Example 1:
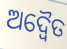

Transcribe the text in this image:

ଅଦ୍ୱୈତ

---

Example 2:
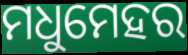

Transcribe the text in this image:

ମଧୁମେହର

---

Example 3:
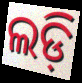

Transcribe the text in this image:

ଲଡ଼ି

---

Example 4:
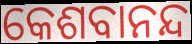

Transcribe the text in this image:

କେଶବାନନ୍ଦ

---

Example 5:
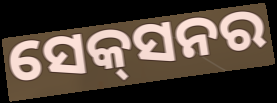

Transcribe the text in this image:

ସେକ୍‍ସନର